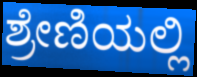
ಶ್ರೇಣಿಯಲ್ಲಿ